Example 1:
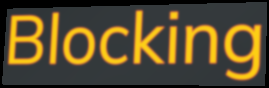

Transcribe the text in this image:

Blocking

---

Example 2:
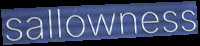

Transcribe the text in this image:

sallowness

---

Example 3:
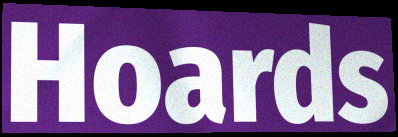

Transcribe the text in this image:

Hoards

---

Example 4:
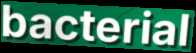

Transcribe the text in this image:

bacterial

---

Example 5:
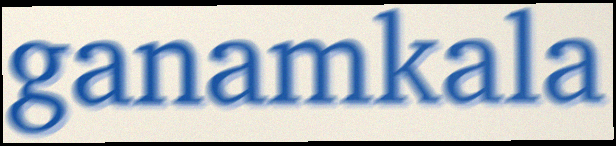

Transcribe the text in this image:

ganamkala